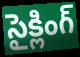
సైక్లింగ్